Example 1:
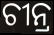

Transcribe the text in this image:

ଚୀନ୍ର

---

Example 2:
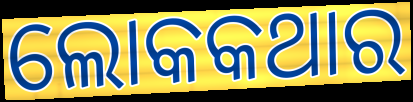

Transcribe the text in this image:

ଲୋକକଥାର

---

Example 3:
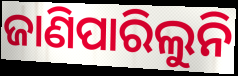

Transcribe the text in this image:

ଜାଣିପାରିଲୁନି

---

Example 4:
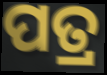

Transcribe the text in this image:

ପତ୍ର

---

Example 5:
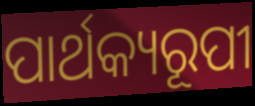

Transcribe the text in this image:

ପାର୍ଥକ୍ୟରୂପୀ